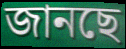
জানছে